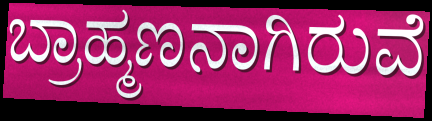
ಬ್ರಾಹ್ಮಣನಾಗಿರುವೆ